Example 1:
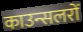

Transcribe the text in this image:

काउन्सलरों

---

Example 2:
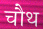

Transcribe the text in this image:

चौथ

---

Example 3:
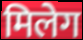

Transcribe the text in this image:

मिलेग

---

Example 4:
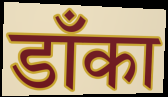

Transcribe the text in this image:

डाँका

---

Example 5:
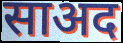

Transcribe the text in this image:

साअद